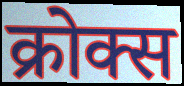
क्रोक्स